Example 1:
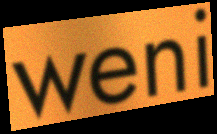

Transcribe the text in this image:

weni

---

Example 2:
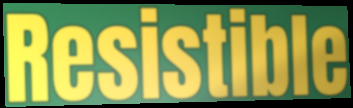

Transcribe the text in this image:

Resistible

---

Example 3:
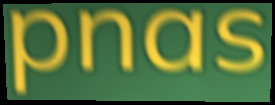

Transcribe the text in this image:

pnas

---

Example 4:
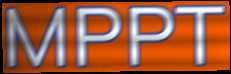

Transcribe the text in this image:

MPPT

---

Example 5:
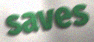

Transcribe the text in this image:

saves